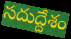
సదుద్దేశం